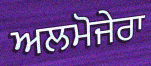
ਅਲਮੋਜੇਰਾ